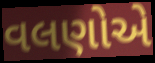
વલણોએ